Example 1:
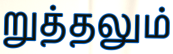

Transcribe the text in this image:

றுத்தலும்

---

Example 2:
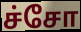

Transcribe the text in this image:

ச்சோ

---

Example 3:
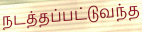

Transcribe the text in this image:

நடத்தப்பட்டுவந்த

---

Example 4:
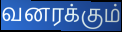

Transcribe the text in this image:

வனரக்கும்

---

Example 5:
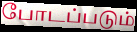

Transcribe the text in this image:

போடப்படும்